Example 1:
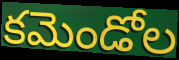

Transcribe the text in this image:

కమెండోల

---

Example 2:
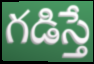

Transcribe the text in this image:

గడిస్తే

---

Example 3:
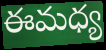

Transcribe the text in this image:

ఈమధ్య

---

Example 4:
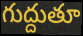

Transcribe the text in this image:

గుద్దుతూ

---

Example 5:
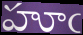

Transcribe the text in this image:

హూఁ